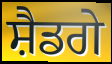
ਸ਼ੈਡਗੇ